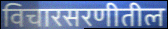
विचारसरणीतील